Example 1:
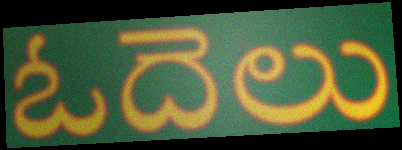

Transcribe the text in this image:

ఓదెలు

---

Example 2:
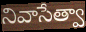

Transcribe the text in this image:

నివాసేత్వా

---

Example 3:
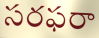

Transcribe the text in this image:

సరఫరా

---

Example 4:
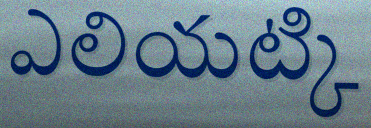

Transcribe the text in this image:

ఎలియట్కి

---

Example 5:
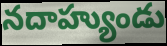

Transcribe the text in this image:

నదాహ్యుండు